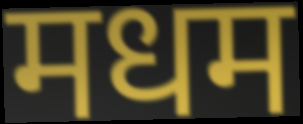
मधम